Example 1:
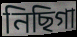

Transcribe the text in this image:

নিছিগা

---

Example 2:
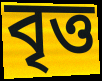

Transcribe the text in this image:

বৃত্ত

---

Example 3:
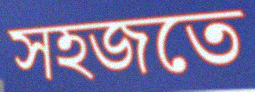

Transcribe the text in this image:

সহজতে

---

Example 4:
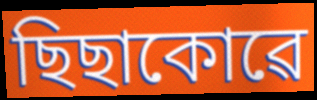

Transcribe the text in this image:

ছিছাকোৱে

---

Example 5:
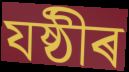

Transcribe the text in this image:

যষ্ঠীৰ